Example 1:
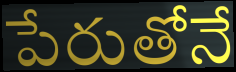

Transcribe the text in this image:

పేరుతోనే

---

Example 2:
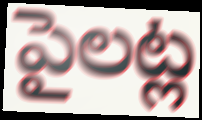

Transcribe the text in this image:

పైలట్ల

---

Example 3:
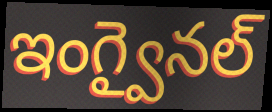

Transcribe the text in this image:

ఇంగ్వైనల్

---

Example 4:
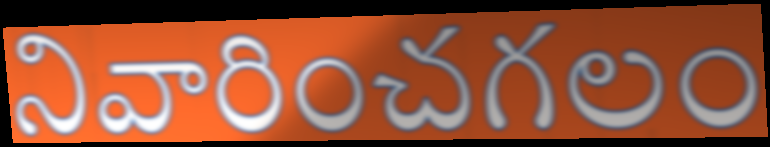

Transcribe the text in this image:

నివారించగలం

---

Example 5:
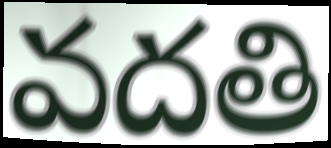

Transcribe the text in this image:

వదతి